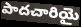
పాదచారియై